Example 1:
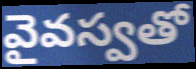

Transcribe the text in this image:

వైవస్వతో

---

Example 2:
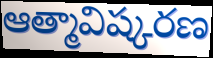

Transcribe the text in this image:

ఆత్మావిష్కరణ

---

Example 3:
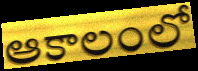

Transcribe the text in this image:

ఆకాలంలో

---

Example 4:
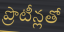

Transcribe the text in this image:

ప్రొటీన్లతో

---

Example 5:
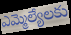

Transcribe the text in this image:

ఎమ్మెల్యేలకు